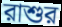
রাশুর